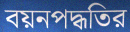
বয়নপদ্ধতির